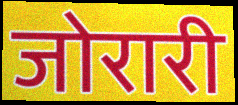
जोरारी